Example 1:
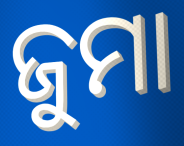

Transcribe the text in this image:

ଜୁମା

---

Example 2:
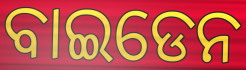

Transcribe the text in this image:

ବାଇଡେନ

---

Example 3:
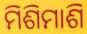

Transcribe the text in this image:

ମିଶିମାଶି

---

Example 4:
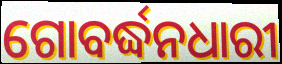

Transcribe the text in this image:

ଗୋବର୍ଦ୍ଧନଧାରୀ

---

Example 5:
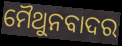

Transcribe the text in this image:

ମୈଥୁନବାଦର